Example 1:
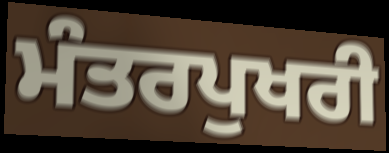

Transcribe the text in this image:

ਮੰਤਰਪੁਖਰੀ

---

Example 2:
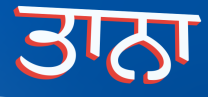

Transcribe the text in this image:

ਤਾਨਾ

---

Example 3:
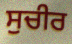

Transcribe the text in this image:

ਸੁਚੀਰ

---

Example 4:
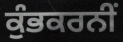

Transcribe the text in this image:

ਕੁੰਭਕਰਨੀਂ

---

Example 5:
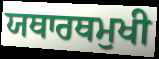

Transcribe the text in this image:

ਯਥਾਰਥਮੁਖੀ